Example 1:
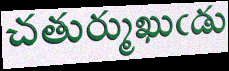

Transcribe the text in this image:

చతుర్ముఖుఁడు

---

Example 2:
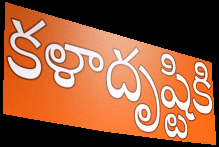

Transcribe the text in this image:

కళాదృష్టికి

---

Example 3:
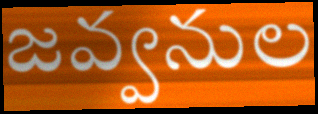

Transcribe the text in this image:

జవ్వనుల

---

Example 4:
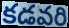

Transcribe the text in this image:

కడవరి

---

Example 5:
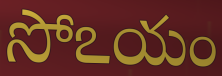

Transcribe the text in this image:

సోఽయం